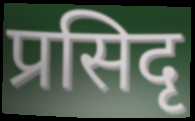
प्रसिदृ